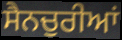
ਸੈਨਚੁਰੀਆਂ